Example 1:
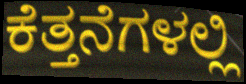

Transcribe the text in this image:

ಕೆತ್ತನೆಗಳಲ್ಲಿ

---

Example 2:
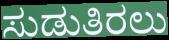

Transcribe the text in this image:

ಸುಡುತಿರಲು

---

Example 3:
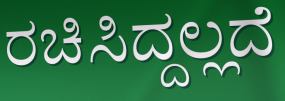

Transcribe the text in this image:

ರಚಿಸಿದ್ದಲ್ಲದೆ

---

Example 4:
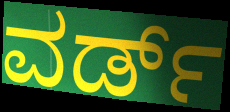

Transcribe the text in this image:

ವರ್ಡ್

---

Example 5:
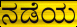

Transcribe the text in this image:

ನಡೆಯ